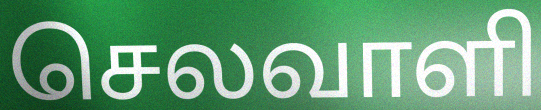
செலவாளி